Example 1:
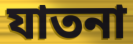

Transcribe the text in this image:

যাতনা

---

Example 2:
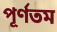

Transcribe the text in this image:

পূর্ণতম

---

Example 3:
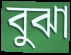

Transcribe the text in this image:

বুঝা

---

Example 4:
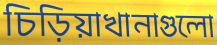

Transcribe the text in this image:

চিড়িয়াখানাগুলো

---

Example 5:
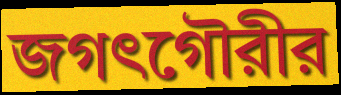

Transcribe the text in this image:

জগৎগৌরীর